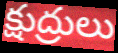
క్షుద్రులు